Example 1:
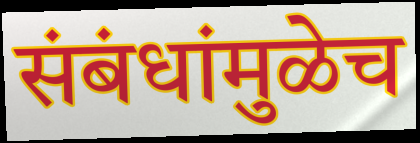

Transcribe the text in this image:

संबंधांमुळेच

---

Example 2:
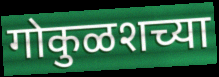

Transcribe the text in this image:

गोकुळशच्या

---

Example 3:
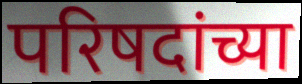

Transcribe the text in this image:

परिषदांच्या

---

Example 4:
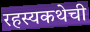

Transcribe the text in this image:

रहस्यकथेची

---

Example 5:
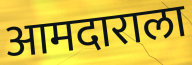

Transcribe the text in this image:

आमदाराला